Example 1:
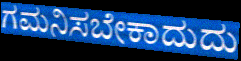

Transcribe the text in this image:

ಗಮನಿಸಬೇಕಾದುದು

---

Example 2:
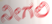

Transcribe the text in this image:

ನೀಗಲಿ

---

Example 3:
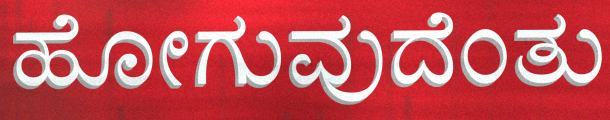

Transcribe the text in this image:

ಹೋಗುವುದೆಂತು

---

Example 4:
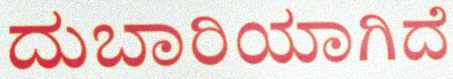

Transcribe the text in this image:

ದುಬಾರಿಯಾಗಿದೆ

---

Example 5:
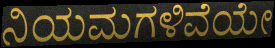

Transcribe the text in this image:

ನಿಯಮಗಳಿವೆಯೇ